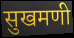
सुखमणी